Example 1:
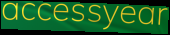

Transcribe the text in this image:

accessyear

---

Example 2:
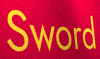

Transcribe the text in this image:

Sword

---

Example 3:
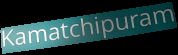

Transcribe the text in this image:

Kamatchipuram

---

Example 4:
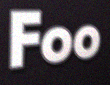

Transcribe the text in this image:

Foo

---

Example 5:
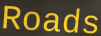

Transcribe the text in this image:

Roads